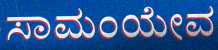
ಸಾಮಂಯೇವ